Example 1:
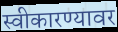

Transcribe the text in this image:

स्वीकारण्यावर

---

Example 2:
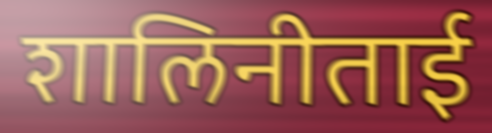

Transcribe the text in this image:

शालिनीताई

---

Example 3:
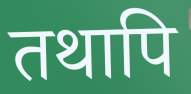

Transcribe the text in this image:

तथापि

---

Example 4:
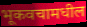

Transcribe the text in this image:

भूकवचामधील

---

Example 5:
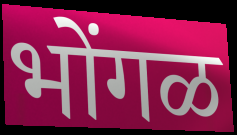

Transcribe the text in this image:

भोंगळ